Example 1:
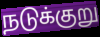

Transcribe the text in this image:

நடுக்குறு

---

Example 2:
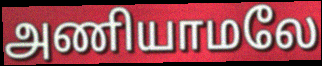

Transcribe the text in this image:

அணியாமலே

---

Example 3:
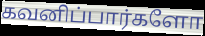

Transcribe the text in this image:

கவனிப்பார்களோ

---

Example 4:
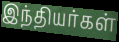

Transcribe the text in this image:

இந்தியர்கள்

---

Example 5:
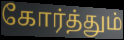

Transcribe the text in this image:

கோர்த்தும்